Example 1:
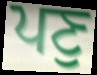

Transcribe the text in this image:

ਪਣੁ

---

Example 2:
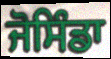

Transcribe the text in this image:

ਜੋਸਿੰਡਾ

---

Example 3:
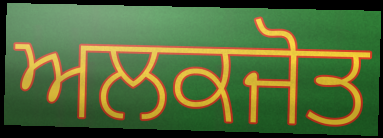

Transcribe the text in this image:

ਅਲਕਜੋਤ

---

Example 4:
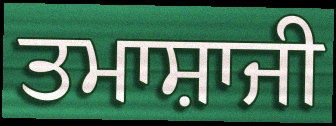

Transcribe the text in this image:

ਤਮਾਸ਼ਾਜੀ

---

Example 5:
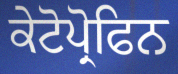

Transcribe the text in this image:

ਕੇਟੋਪ੍ਰੋਫਿਨ